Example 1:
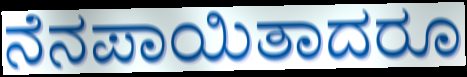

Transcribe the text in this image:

ನೆನಪಾಯಿತಾದರೂ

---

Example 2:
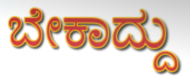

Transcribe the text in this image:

ಬೇಕಾದ್ದು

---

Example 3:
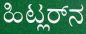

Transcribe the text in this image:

ಹಿಟ್ಲರ್‌ನ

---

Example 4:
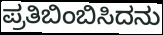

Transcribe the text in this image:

ಪ್ರತಿಬಿಂಬಿಸಿದನು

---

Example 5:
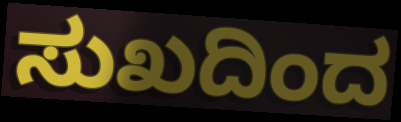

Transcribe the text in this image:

ಸುಖದಿಂದ